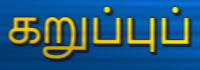
கறுப்புப்